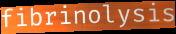
fibrinolysis